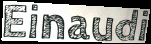
Einaudi